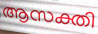
ആസക്തി